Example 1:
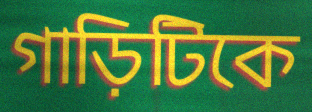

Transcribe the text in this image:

গাড়িটিকে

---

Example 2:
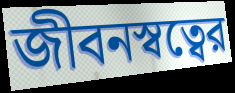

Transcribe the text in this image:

জীবনস্বত্বের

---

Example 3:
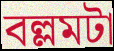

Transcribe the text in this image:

বল্লমটা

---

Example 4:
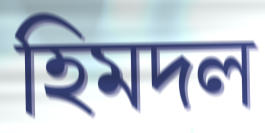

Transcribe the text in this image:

হিমদল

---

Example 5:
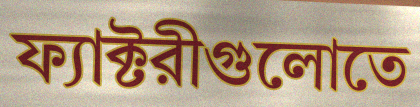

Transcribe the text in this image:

ফ্যাক্টরীগুলোতে